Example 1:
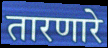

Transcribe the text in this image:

तारणारे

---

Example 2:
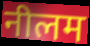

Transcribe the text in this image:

नीलम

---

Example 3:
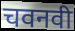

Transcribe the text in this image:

चवनवी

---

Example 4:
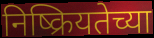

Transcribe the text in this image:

निष्क्रियतेच्या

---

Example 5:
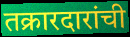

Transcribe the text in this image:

तक्रारदारांची